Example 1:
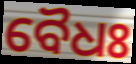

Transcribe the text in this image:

ବୈଧଃ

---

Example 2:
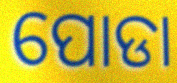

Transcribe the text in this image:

ପୋଡା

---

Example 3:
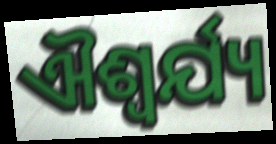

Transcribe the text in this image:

ଐଶ୍ଵର୍ଯ୍ୟ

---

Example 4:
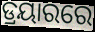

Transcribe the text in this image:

ଡ୍ରୟାରରେ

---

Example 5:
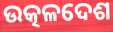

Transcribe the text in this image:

ଉତ୍କଳଦେଶ